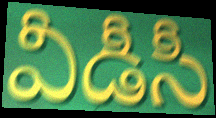
వీడీసీ